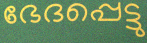
ഭേദപ്പെട്ടു